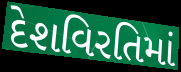
દેશવિરતિમાં